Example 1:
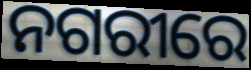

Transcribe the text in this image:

ନଗରୀରେ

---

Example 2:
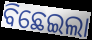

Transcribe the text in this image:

ବିଛେଇଲା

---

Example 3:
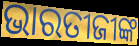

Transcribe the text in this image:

ଭାରତୀଜୀଙ୍କ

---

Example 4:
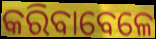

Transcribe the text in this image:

କରିବାବେଳେ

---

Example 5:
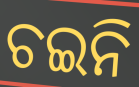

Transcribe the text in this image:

ଚଇନି